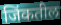
जिंकतील